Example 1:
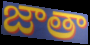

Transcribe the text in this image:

జాతా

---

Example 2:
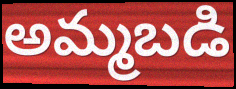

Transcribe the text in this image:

అమ్మబడి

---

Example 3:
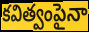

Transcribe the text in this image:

కవిత్వంపైనా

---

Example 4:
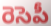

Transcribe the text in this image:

రెసెపీ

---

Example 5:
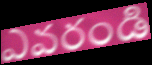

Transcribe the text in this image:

ఎవరండి